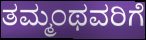
ತಮ್ಮಂಥವರಿಗೆ